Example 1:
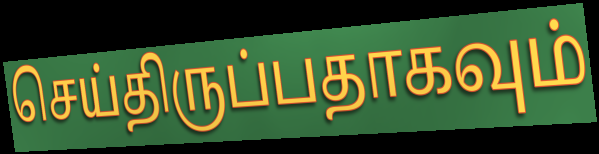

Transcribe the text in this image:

செய்திருப்பதாகவும்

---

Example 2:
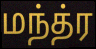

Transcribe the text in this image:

மந்த்ர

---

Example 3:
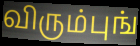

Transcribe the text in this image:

விரும்புங்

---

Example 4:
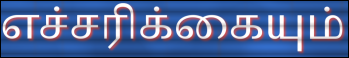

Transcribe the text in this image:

எச்சரிக்கையும்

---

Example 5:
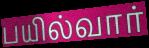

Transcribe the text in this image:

பயில்வார்